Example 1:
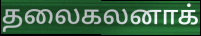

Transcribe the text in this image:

தலைகலனாக்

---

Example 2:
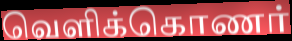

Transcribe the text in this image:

வெளிக்கொணர்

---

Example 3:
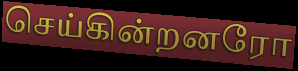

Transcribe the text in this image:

செய்கின்றனரோ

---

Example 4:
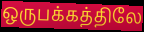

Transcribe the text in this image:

ஒருபக்கத்திலே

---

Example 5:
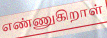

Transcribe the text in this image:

எண்ணுகிறாள்